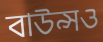
বাউন্সও